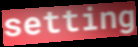
setting